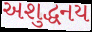
અશુદ્ધનય